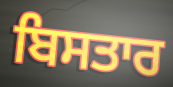
ਬਿਸਤਾਰ